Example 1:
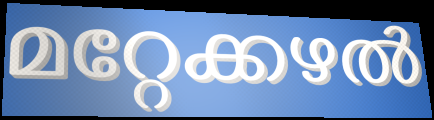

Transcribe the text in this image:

മറ്റേക്കഴൽ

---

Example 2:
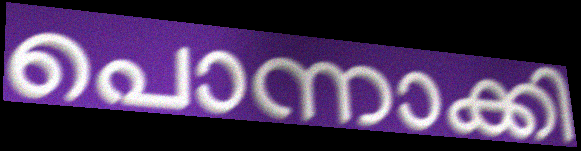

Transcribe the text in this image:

പൊന്നാക്കി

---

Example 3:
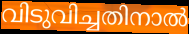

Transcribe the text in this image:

വിടുവിച്ചതിനാൽ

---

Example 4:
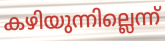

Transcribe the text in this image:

കഴിയുന്നില്ലെന്ന്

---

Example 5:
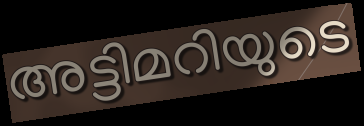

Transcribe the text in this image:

അട്ടിമറിയുടെ